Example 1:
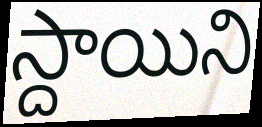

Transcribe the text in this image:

స్దాయిని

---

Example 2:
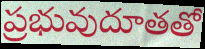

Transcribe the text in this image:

ప్రభువుదూతతో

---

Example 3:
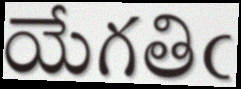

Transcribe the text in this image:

యేగతిఁ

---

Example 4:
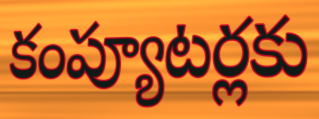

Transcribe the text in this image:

కంప్యూటర్లకు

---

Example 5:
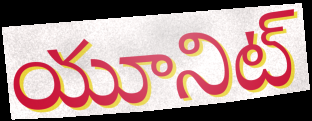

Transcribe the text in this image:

యూనిట్